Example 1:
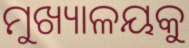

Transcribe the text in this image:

ମୁଖ୍ୟାଳୟକୁ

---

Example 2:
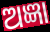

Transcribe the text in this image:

ଅଜ୍ଞା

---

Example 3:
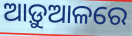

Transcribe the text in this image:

ଆଡ଼ୁଆଳରେ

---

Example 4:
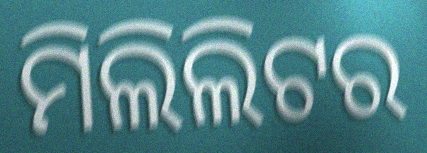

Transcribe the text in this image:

ମିଲିଲିଟର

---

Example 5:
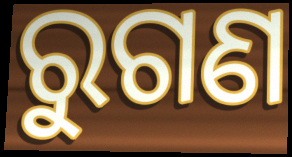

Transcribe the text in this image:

ରୁଗଣ